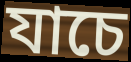
যাচে